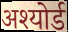
अश्योर्ड